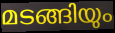
മടങ്ങിയും